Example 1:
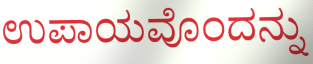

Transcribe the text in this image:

ಉಪಾಯವೊಂದನ್ನು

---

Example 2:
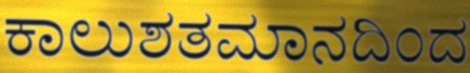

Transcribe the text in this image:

ಕಾಲುಶತಮಾನದಿಂದ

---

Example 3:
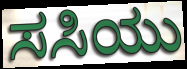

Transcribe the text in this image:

ಸಸಿಯು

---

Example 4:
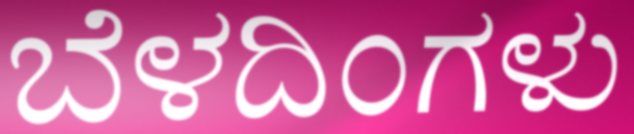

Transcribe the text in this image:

ಬೆಳದಿಂಗಳು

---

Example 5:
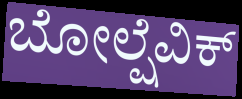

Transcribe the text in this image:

ಬೋಲ್ಷೆವಿಕ್